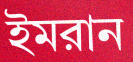
ইমরান